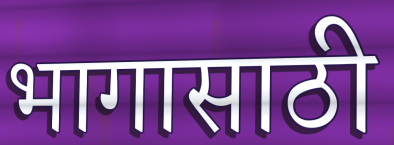
भागासाठी